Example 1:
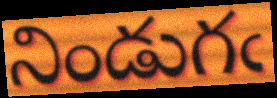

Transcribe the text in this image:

నిండుగఁ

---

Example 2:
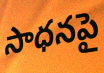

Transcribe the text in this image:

సాధనపై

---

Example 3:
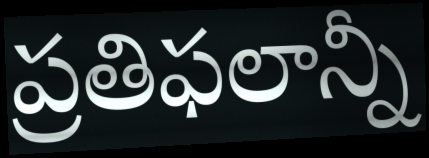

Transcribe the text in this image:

ప్రతిఫలాన్నీ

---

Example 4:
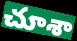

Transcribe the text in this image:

చూశా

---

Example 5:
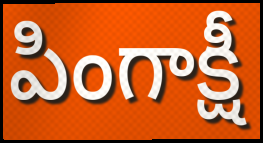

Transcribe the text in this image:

పింగాక్షీ